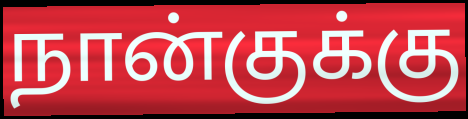
நான்குக்கு